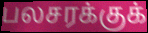
பலசரக்குக்